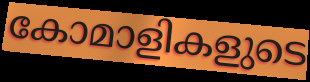
കോമാളികളുടെ